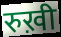
रुख़ी